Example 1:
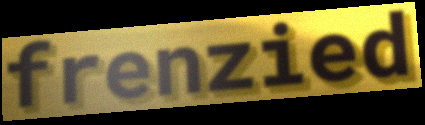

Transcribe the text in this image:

frenzied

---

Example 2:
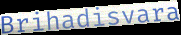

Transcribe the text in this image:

Brihadisvara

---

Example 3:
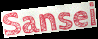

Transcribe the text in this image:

Sansei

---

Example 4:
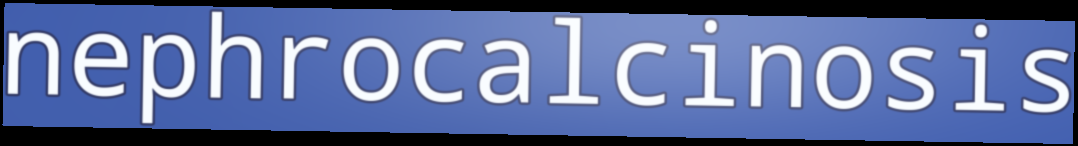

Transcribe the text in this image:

nephrocalcinosis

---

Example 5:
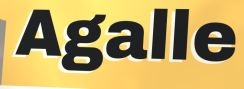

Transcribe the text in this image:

Agalle